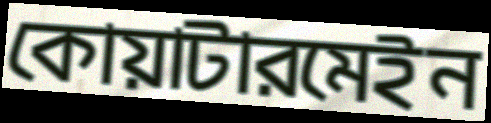
কোয়াটারমেইন